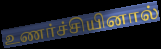
உணர்ச்சியினால்